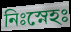
নিঃস্নেহঃ